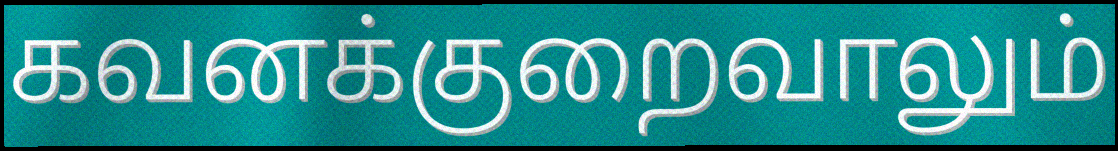
கவனக்குறைவாலும்